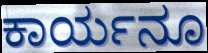
ಕಾರ್ಯನೂ